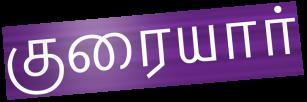
குரையார்